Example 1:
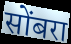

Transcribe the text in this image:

सोंबरा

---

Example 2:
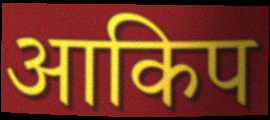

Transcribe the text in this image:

आकिप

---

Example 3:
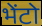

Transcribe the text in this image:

भेंटो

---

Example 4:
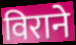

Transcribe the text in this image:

विराने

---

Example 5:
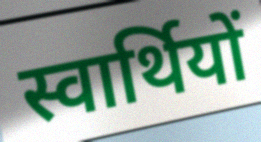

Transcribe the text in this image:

स्वार्थियों